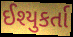
ઈશ્યુકર્તા